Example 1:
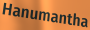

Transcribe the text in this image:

Hanumantha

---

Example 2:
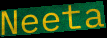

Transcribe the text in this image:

Neeta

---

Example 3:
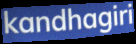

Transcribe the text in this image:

kandhagiri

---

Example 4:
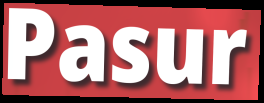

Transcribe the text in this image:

Pasur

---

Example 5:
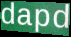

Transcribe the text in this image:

dapd